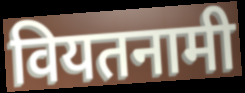
वियतनामी